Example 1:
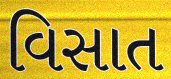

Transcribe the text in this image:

વિસાત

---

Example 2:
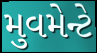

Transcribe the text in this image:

મુવમેન્ટે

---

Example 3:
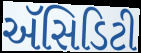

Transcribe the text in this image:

ઍસિડિટી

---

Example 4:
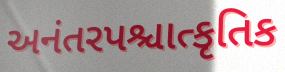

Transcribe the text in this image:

અનંતરપશ્ચાત્કૃતિક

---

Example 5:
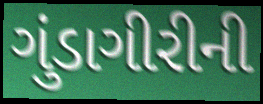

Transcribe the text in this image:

ગુંડાગીરીની